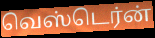
வெஸ்டெர்ன்